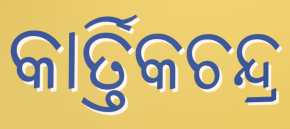
କାର୍ତ୍ତିକଚନ୍ଦ୍ର